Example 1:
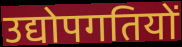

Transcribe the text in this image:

उद्योपगतियों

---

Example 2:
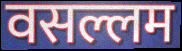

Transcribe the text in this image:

वसल्लम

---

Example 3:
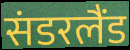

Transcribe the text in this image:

संडरलैंड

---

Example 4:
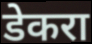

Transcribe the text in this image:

डेकरा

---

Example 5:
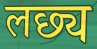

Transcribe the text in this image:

लछ्य